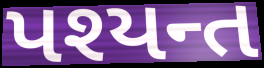
પશ્યન્ત